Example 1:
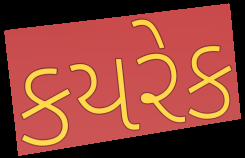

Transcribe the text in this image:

કયરેક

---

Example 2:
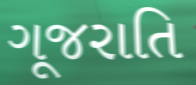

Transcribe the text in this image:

ગૂજરાતિ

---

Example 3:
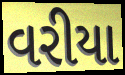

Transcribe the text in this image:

વરીયા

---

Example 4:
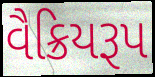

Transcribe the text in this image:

વૈક્રિયરૂપ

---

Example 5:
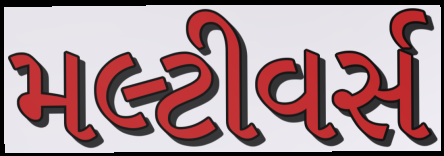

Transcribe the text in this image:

મલ્ટીવર્સ